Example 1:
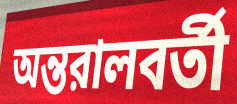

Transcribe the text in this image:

অন্তরালবর্তী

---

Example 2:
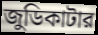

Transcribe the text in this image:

জুডিকাটার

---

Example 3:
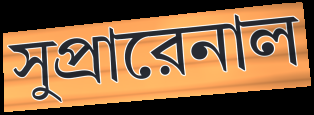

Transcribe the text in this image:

সুপ্রারেনাল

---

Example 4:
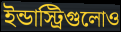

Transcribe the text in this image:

ইন্ডাস্ট্রিগুলোও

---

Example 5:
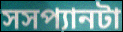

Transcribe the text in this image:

সসপ্যানটা